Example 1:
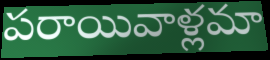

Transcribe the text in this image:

పరాయివాళ్లమా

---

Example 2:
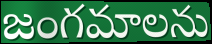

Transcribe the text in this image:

జంగమాలను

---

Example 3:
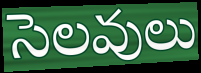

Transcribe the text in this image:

సెలవులు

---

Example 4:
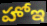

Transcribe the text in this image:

హోఇ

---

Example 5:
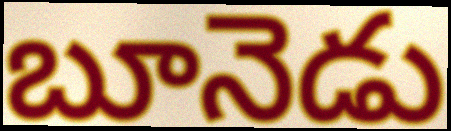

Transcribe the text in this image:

బూనెడు